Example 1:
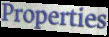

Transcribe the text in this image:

Properties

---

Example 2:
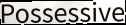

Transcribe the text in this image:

Possessive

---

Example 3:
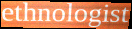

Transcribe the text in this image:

ethnologist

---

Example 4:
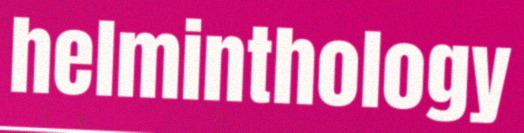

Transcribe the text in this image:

helminthology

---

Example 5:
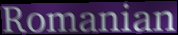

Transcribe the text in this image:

Romanian